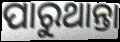
ପାରୁଥାନ୍ତା